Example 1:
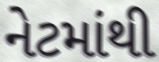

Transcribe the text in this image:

નેટમાંથી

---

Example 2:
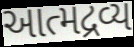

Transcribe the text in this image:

આત્મદ્રવ્ય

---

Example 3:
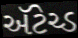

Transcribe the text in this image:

ઍટેચ્ડ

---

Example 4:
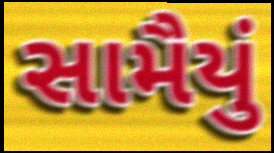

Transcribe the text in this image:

સામૈયું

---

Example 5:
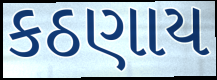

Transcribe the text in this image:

કઠણાય